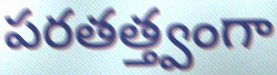
పరతత్త్వంగా